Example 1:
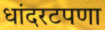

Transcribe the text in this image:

धांदरटपणा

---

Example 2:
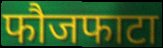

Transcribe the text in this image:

फौजफाटा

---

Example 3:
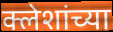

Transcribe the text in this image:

क्लेशांच्या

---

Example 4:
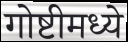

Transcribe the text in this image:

गोष्टीमध्ये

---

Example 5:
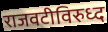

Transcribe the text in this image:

राजवटीविरुध्द